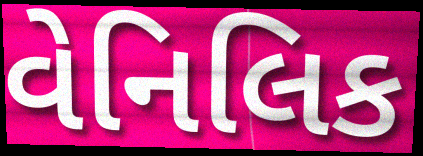
વેનિલિક